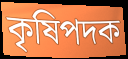
কৃষিপদক